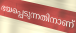
ഭയപ്പെടുന്നതിനാണ്